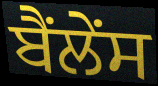
ਬੈਂਲੇਂਸ